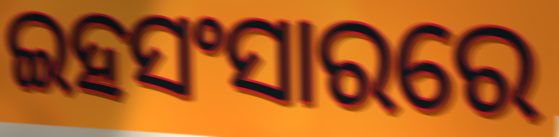
ଇହସଂସାରରେ